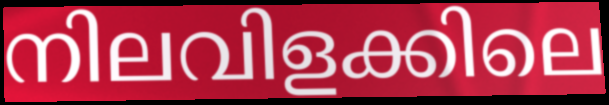
നിലവിളക്കിലെ